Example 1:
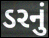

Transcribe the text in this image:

ડરનું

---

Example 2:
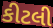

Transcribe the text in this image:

કીટલી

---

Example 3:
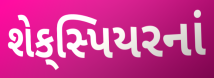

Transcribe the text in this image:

શેક્‌સ્પિયરનાં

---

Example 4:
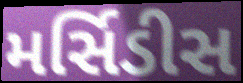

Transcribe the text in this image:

મર્સિડીસ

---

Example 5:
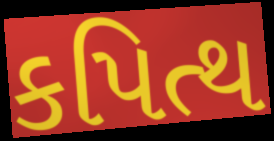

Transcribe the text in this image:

કપિત્થ